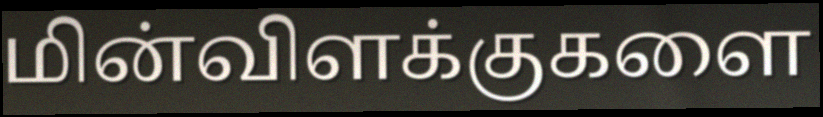
மின்விளக்குகளை